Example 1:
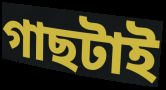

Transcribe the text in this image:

গাছটাই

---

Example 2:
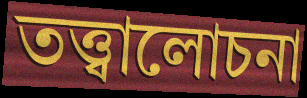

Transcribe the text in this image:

তত্ত্বালোচনা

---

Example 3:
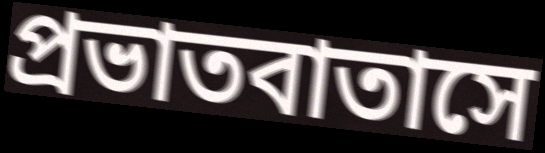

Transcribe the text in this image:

প্রভাতবাতাসে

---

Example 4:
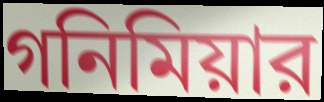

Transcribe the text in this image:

গনিমিয়ার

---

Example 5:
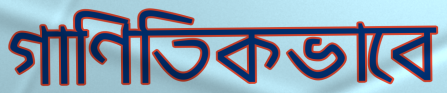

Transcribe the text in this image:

গাণিতিকভাবে